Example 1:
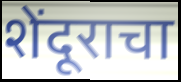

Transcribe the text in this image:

शेंदूराचा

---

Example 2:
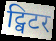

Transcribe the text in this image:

ट्विटर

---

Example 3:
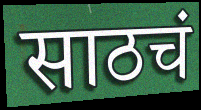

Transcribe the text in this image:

साठचं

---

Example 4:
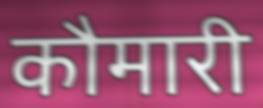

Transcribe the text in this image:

कौमारी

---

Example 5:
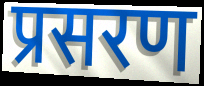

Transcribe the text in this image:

प्रसरण